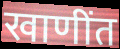
खाणींत